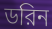
ডরিন